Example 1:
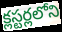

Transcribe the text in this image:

క్లస్టర్లలోని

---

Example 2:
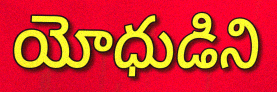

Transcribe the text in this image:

యోధుడిని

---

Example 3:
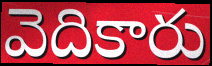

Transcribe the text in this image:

వెదికారు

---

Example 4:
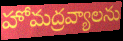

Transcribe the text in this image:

హోమద్రవ్యాలను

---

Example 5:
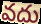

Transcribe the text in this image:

వదు